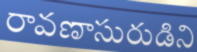
రావణాసురుడిని